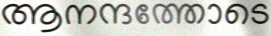
ആനന്ദത്തോടെ